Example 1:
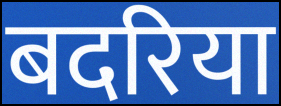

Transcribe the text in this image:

बदरिया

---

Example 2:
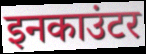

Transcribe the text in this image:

इनकाउंटर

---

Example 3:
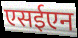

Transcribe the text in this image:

एसईएन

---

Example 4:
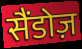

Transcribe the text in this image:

सैंडोज़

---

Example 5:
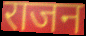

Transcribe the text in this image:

राजन